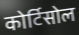
कोर्टिसोल